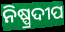
ନିଷ୍ପ୍ରଦୀପ